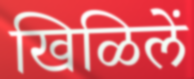
खिळिलें